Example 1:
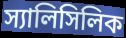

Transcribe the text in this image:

স্যালিসিলিক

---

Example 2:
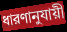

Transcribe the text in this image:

ধারণানুযায়ী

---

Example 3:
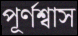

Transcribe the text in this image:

পূর্ণশ্বাস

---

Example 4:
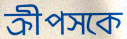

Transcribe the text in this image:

ক্রীপসকে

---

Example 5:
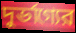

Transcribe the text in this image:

দুর্ভাগ্যের